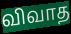
விவாத